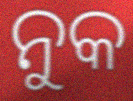
ନୁକ